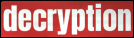
decryption